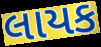
લાયક